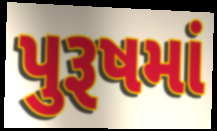
પુરૂષમાં